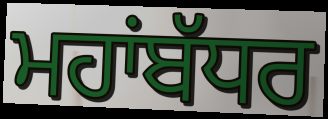
ਮਹਾਂਬੱਧਰ